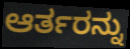
ಆರ್ತರನ್ನು